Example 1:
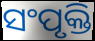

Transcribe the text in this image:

ସଂପୃକ୍ତି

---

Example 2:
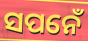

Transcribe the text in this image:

ସପନେଁ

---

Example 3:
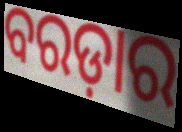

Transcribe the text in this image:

ବରଡ଼ାର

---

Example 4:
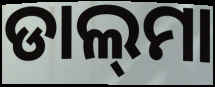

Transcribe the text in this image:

ଡାଲ୍‍ମା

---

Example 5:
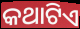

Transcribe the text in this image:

କଥାଟିଏ